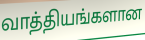
வாத்தியங்களான